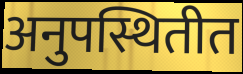
अनुपस्थितीत